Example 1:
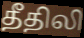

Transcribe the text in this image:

தீதிலி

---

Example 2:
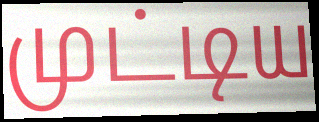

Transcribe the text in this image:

முட்டிய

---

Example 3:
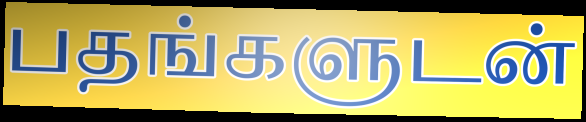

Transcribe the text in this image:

பதங்களுடன்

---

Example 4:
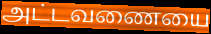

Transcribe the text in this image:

அட்டவணையை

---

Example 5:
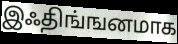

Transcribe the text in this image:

இஃதிங்ஙனமாக